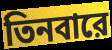
তিনবারে